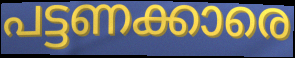
പട്ടണക്കാരെ